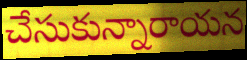
చేసుకున్నారాయన